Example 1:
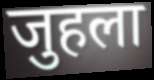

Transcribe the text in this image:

जुहला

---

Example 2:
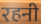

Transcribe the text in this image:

रहनी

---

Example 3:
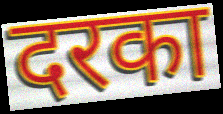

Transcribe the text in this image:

दरका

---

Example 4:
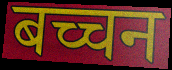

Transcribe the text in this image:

बच्चन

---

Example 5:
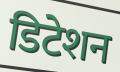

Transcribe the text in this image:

डिटेशन